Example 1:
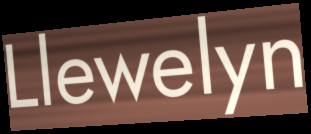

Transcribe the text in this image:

Llewelyn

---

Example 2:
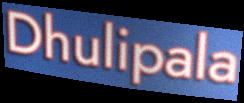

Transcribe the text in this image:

Dhulipala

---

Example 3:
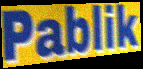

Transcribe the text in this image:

Pablik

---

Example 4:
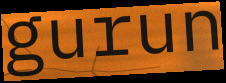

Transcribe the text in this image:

gurun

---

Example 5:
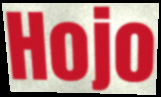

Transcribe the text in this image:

Hojo